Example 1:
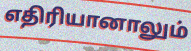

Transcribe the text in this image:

எதிரியானாலும்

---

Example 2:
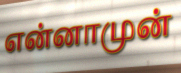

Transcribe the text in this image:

என்னாமுன்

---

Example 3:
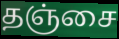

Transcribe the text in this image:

தஞ்சை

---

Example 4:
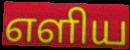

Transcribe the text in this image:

எளிய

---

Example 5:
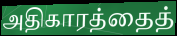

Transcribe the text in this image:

அதிகாரத்தைத்